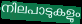
നിലപാടുകളും